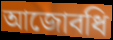
আজোবধি